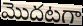
మొదటగా